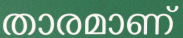
താരമാണ്